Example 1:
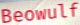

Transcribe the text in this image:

Beowulf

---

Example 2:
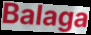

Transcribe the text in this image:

Balaga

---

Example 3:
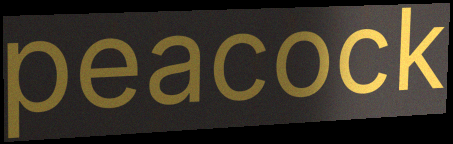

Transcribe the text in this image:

peacock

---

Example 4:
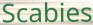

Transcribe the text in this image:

Scabies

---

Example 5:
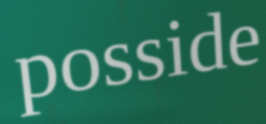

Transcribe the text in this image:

posside